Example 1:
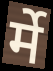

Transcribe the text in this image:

र्मे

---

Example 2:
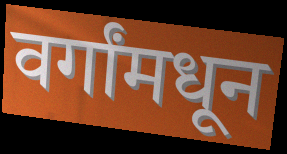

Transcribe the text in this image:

वर्गांमधून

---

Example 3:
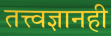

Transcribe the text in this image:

तत्त्वज्ञानही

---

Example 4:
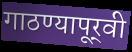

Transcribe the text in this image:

गाठण्यापूर्वी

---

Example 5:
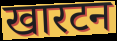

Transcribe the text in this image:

खारटन